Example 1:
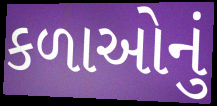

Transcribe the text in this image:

કળાઓનું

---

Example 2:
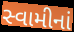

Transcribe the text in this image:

સ્વામીનાં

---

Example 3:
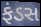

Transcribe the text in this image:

ફંડસ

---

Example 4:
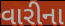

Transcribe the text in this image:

વારીના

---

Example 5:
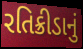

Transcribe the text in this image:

રતિક્રીડાનું